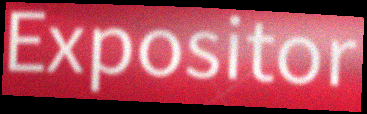
Expositor